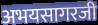
अभयसागरजी